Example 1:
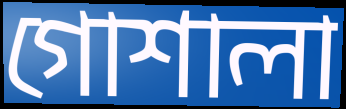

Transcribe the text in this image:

গোশালা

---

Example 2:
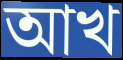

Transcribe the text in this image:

আখ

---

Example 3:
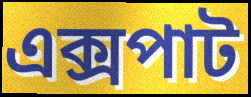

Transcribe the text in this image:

এক্সপাট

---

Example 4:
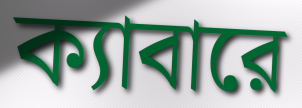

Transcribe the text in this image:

ক্যাবারে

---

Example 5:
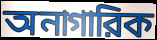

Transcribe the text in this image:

অনাগারিক